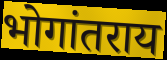
भोगांतराय